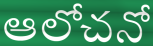
ఆలోచనో